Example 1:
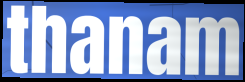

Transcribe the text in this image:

thanam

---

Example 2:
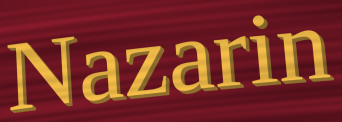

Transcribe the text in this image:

Nazarin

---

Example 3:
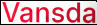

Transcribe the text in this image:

Vansda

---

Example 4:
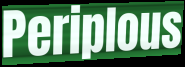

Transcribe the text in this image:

Periplous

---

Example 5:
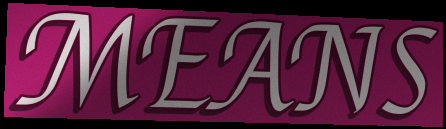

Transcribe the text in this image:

MEANS